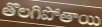
తొలగిపోతాయి